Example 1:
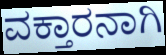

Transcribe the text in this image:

ವಕ್ತಾರನಾಗಿ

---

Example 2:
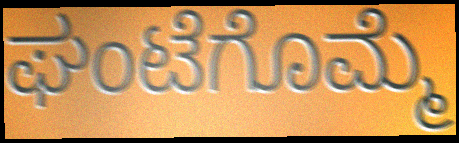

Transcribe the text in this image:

ಘಂಟೆಗೊಮ್ಮೆ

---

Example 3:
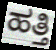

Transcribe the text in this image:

ಹತ್ತಿ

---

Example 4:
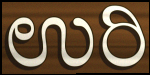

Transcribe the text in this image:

ಉರಿ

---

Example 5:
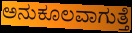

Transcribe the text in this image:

ಅನುಕೂಲವಾಗುತ್ತೆ